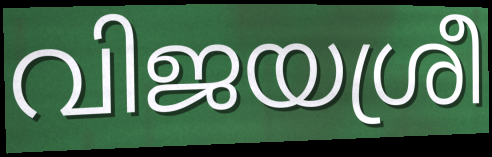
വിജയശ്രീ